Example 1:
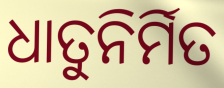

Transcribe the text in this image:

ଧାତୁନିର୍ମିତ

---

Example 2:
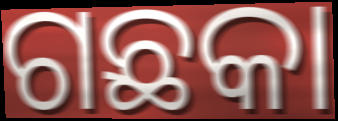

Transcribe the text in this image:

ଗଛକା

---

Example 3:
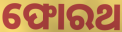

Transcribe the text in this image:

ଫୋରଥ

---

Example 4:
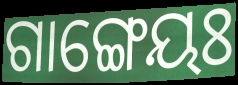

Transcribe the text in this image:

ଗାଙ୍ଗେୟଃ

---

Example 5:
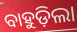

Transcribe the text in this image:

ବାହୁଡ଼ିଲା